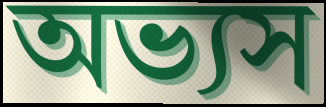
অভ্যস